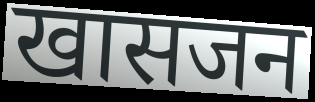
खासजन